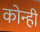
कोन्ही